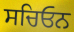
ਸਚਿਓਨ